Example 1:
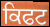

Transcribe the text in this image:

ਕਿਫਟ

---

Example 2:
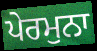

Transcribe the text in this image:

ਪੇਰਮੁਨਾ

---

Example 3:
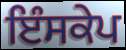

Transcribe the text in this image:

ਇੰਸਕੇਪ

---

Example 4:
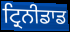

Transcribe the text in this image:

ਟ੍ਰਿਨੀਡਾਡ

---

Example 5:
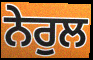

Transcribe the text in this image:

ਨੇਰੁਲ